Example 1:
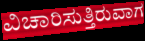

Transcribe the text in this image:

ವಿಚಾರಿಸುತ್ತಿರುವಾಗ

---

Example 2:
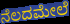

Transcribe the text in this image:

ನೆಲದಮೇಲೆ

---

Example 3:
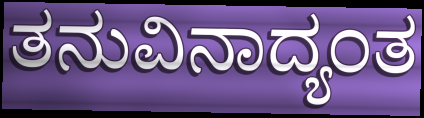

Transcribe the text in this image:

ತನುವಿನಾದ್ಯಂತ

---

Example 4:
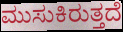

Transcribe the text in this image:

ಮುಸುಕಿರುತ್ತದೆ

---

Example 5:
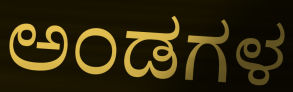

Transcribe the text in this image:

ಅಂಡಗಳ